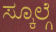
ಸ್ಕೂಲ್ಗೆ